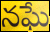
నఘే